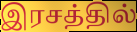
இரசத்தில்